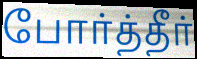
போர்த்தீர்